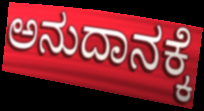
ಅನುದಾನಕ್ಕೆ